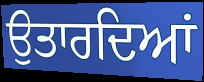
ਉਤਾਰਦਿਆਂ